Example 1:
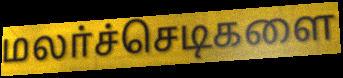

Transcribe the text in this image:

மலர்ச்செடிகளை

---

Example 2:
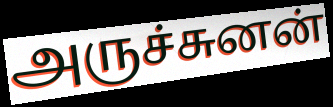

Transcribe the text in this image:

அருச்சுனன்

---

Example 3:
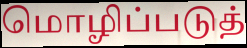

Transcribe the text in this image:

மொழிப்படுத்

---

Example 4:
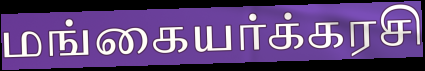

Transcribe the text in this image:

மங்கையர்க்கரசி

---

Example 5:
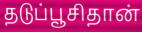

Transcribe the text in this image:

தடுப்பூசிதான்